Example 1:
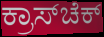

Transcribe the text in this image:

ಕ್ರಾಸ್‌ಚೆಕ್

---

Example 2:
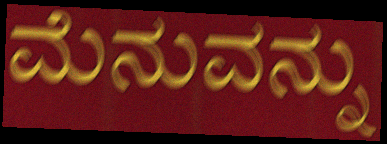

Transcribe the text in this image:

ಮೆನುವನ್ನು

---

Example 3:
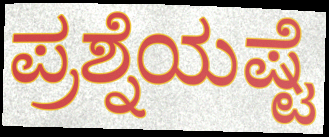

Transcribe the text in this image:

ಪ್ರಶ್ನೆಯಷ್ಟೆ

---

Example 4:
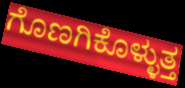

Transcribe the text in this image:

ಗೊಣಗಿಕೊಳ್ಳುತ್ತ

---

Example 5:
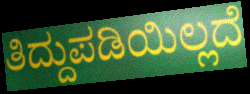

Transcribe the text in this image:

ತಿದ್ದುಪಡಿಯಿಲ್ಲದೆ